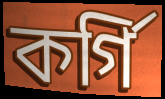
কর্গি